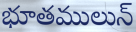
భూతములున్